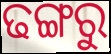
ଢଙ୍ଗରୁ